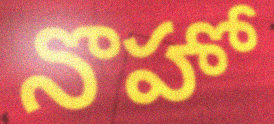
నొహో